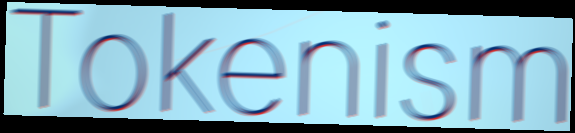
Tokenism